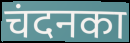
चंदनका